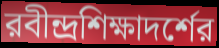
রবীন্দ্রশিক্ষাদর্শের